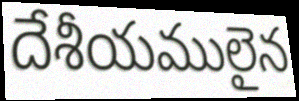
దేశీయములైన